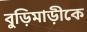
বুড়িমাড়ীকে